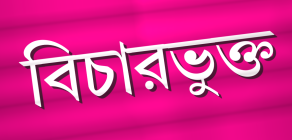
বিচারভুক্ত